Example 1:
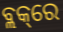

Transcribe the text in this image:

ବ୍ଲକ୍‌ରେ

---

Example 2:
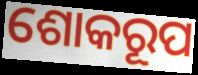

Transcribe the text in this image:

ଶୋକରୂପ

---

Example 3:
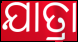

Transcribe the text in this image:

ଯାତ୍ରା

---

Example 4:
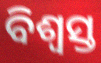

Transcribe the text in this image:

ବିଶ୍ୱସ୍ତ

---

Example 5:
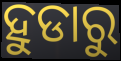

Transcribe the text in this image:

ହୁଡାରୁ